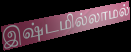
இஷ்டமில்லாமல்